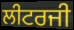
ਲੀਟਰਜੀ